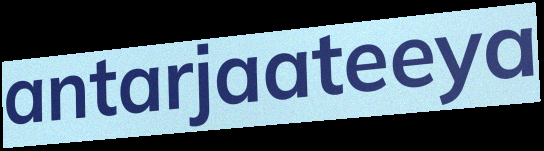
antarjaateeya